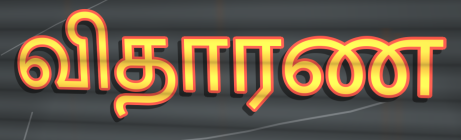
விதாரண